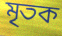
মৃতক